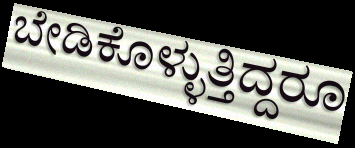
ಬೇಡಿಕೊಳ್ಳುತ್ತಿದ್ದರೂ